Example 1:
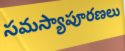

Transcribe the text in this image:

సమస్యాపూరణలు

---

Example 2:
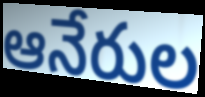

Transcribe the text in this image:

ఆనేరుల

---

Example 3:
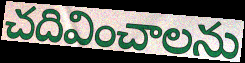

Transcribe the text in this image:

చదివించాలను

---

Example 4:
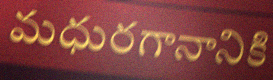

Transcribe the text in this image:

మధురగానానికి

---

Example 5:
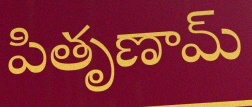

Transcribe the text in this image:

పితృణామ్